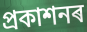
প্ৰকাশনৰ